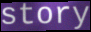
story